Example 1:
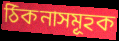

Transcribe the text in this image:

ঠিকনাসমূহক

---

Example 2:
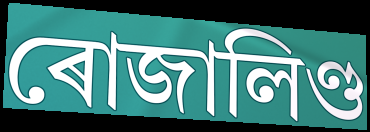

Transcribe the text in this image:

ৰোজালিণ্ড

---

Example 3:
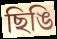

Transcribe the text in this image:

ছিঙি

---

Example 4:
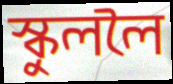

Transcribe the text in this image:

স্কুললৈ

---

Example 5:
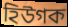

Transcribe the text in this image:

হিউগক